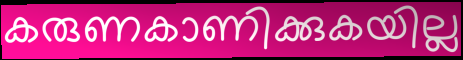
കരുണകാണിക്കുകയില്ല